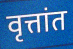
वृत्तांत